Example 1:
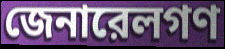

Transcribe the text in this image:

জেনারেলগণ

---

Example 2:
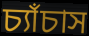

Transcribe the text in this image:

চ্যাঁচাস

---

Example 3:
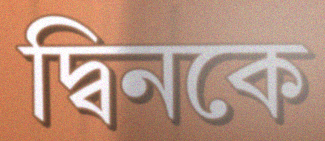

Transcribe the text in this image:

দ্বিনকে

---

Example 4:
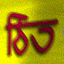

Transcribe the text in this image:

ঠিত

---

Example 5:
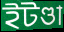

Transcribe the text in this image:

ইটণ্ডা